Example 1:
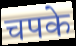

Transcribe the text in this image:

चपके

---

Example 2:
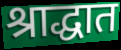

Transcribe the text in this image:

श्राद्धात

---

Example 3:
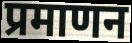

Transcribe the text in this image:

प्रमाणन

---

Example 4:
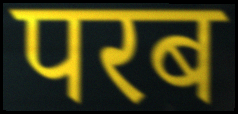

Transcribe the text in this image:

परब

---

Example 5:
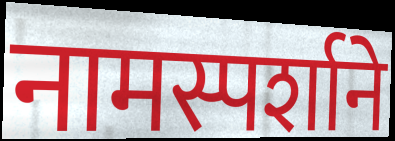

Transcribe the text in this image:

नामस्पर्शाने